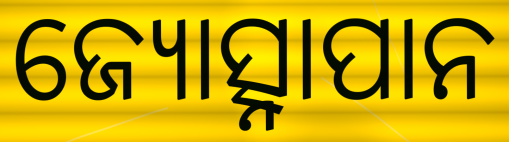
ଜ୍ୟୋତ୍ସ୍ନାପାନ